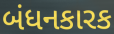
બંધનકારક